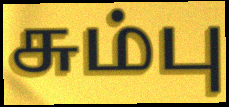
சும்பு